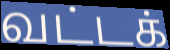
வட்டக்